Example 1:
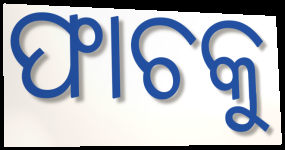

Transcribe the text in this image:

ଫାଚକୁ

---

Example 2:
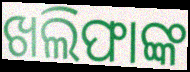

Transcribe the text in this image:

ଖଲିଫାଙ୍କ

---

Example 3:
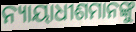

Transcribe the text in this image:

ନ୍ୟାୟାଧୀଶମାନଙ୍କୁ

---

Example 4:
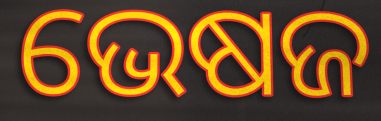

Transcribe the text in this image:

ଭେଷଜ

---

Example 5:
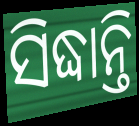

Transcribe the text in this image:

ସିଦ୍ଧାନ୍ତି